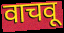
वाचवू